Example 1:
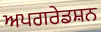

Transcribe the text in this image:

ਅਪਗਰੇਡਸ਼ਨ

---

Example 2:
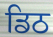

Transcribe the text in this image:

ਡਿਠ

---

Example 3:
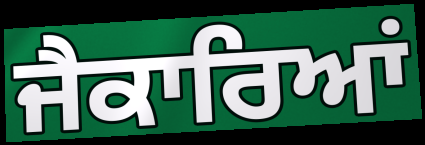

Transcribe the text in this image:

ਜੈਕਾਰਿਆਂ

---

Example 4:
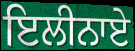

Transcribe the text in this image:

ਇਲੀਨਾਏ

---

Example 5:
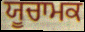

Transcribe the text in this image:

ਯੂਚਾਮਕ